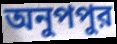
অনুপপুর